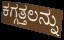
ಕಗ್ಗತ್ತಲನ್ನು